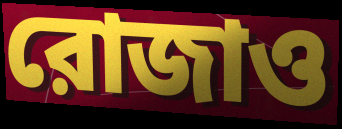
রোজাও